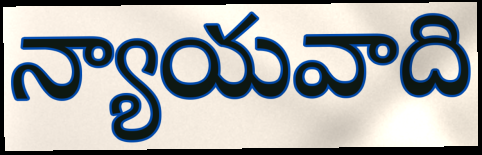
న్యాయవాది